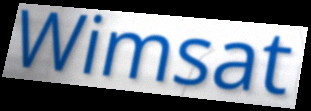
Wimsat